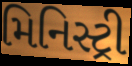
મિનિસ્ટ્રી